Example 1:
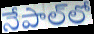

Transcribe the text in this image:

నేపాల్‌లో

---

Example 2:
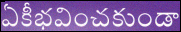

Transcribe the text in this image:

ఏకీభవించకుండా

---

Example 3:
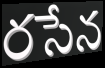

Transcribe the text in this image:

రసేన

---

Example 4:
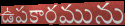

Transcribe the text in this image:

ఉపకారమును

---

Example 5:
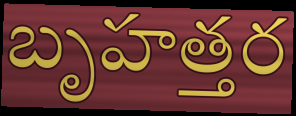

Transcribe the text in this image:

బృహత్తర